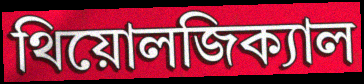
থিয়োলজিক্যাল